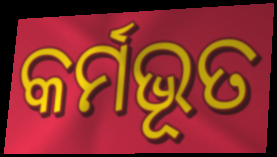
କର୍ମଭୂତ